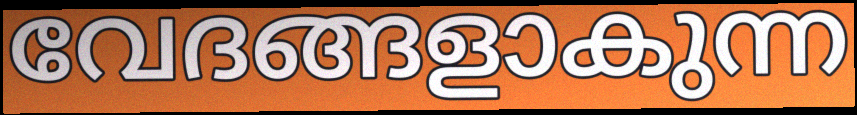
വേദങ്ങളാകുന്ന